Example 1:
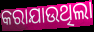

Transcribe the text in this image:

କରାଯାଉଥିଲା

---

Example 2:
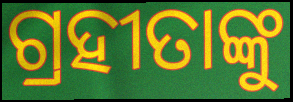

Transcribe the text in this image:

ଗ୍ରହୀତାଙ୍କୁ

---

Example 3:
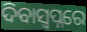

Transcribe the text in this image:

ଦିବାସ୍ବପ୍ନରେ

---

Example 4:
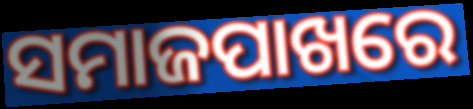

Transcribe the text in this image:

ସମାଜପାଖରେ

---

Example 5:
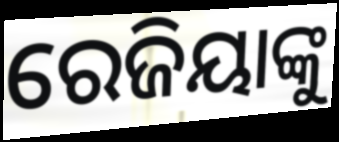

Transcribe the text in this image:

ରେଜିୟାଙ୍କୁ